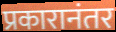
प्रकारानंतर